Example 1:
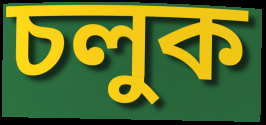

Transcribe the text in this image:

চলুক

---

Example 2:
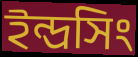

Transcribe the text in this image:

ইন্দ্রসিং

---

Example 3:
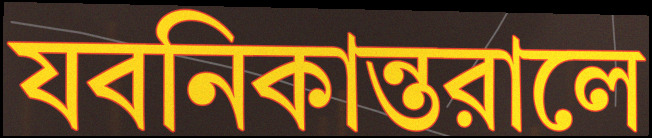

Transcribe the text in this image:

যবনিকান্তরালে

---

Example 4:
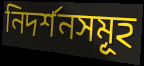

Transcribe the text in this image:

নিদর্শনসমূহ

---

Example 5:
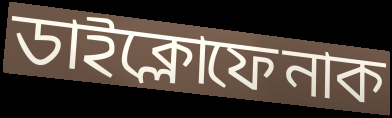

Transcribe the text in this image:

ডাইক্লোফেনাক